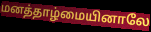
மனத்தாழ்மையினாலே